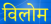
विलोम